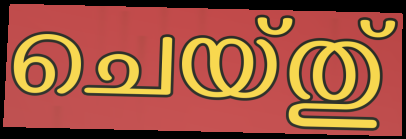
ചെയ്തു്